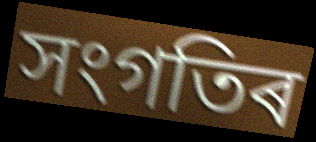
সংগতিৰ